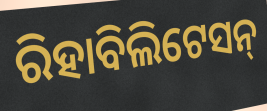
ରିହାବିଲିଟେସନ୍